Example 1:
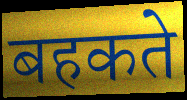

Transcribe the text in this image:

बहकते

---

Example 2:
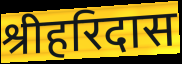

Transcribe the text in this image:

श्रीहरिदास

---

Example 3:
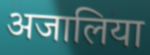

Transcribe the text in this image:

अजालिया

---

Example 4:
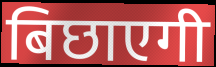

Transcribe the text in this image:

बिछाएगी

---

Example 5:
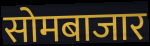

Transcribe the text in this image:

सोमबाजार